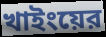
খাইংয়ের